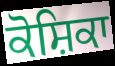
ਕੋਸ਼ਿਕਾ